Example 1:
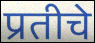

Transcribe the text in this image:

प्रतीचे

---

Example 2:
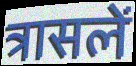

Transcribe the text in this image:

त्रासलें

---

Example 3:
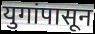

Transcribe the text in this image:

युगांपासून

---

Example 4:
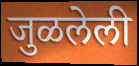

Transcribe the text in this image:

जुळलेली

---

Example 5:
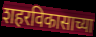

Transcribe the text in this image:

शहरविकासाच्या